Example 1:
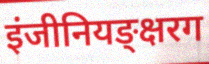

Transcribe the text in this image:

इंजीनियङ्क्षरग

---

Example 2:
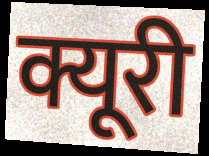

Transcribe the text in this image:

क्यूरी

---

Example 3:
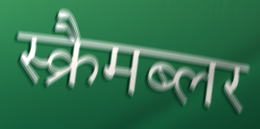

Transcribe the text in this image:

स्क्रैमब्लर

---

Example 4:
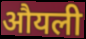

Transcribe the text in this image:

औयली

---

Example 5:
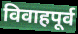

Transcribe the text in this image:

विवाहपूर्व